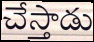
చేస్తాడు